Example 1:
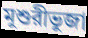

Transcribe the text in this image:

মুশুরীভুজা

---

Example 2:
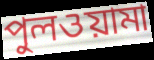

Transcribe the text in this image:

পুলওয়ামা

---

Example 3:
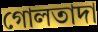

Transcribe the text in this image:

গোলতাদা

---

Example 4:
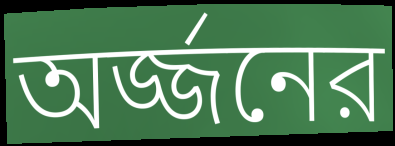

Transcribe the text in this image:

অর্জ্জনের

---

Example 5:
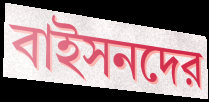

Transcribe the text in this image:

বাইসনদের